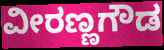
ವೀರಣ್ಣಗೌಡ